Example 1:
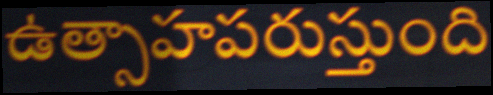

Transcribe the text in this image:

ఉత్సాహపరుస్తుంది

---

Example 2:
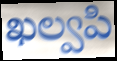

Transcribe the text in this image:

ఖల్వపి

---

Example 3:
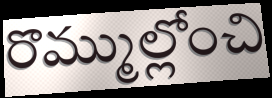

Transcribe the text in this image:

రొమ్ముల్లోంచి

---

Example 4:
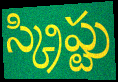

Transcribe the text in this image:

స్క్రిప్టు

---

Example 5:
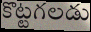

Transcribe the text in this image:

కొట్టగలడు